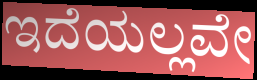
ಇದೆಯಲ್ಲವೇ